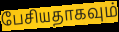
பேசியதாகவும்